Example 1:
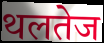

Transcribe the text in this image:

थलतेज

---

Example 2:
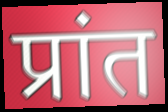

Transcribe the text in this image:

प्रांत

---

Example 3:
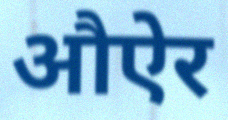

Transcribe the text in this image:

औऐर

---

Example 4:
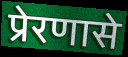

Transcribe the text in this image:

प्रेरणासे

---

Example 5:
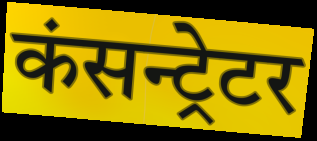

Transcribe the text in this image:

कंसन्ट्रेटर